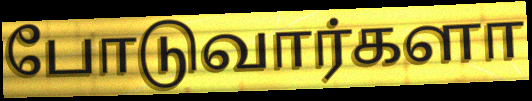
போடுவார்களா